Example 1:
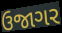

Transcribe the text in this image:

ઉજાગર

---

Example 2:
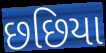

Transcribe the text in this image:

છછિયા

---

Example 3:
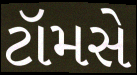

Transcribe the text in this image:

ટૉમસે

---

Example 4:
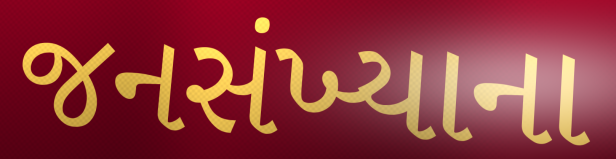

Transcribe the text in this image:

જનસંખ્યાના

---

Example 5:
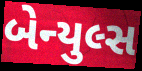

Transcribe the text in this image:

બેન્યુલ્સ